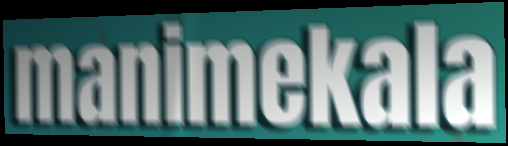
manimekala